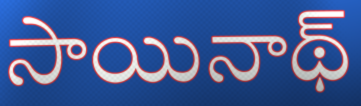
సాయినాథ్